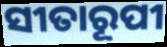
ସୀତାରୂପୀ